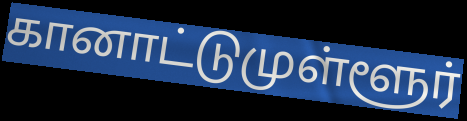
கானாட்டுமுள்ளூர்